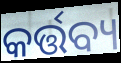
କର୍ତ୍ତବ୍ୟ